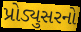
પ્રોડ્યુસરનો